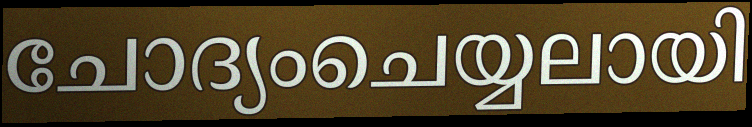
ചോദ്യംചെയ്യലായി